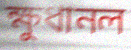
ক্ষুধানল